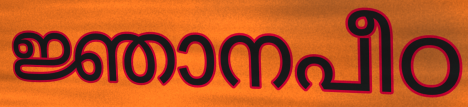
ജ്ഞാനപീഠ